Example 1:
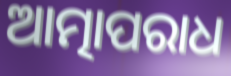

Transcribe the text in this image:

ଆତ୍ମାପରାଧ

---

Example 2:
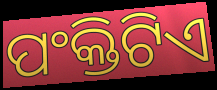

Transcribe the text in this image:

ପଂକ୍ତିଟିଏ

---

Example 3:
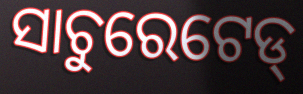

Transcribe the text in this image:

ସାଚୁରେଟେଡ୍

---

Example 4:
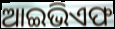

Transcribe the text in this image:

ଆଇଭିଏଫ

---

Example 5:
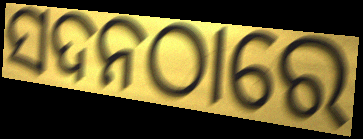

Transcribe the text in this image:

ସଦନଠାରେ